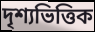
দৃশ্যভিত্তিক